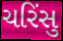
ચરિંસુ